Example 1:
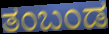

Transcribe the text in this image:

ತಂಬಂಡ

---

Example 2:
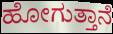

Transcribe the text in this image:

ಹೋಗುತ್ತಾನೆ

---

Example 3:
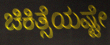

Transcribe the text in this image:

ಚಿಕಿತ್ಸೆಯಷ್ಟೇ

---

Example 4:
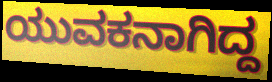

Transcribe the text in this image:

ಯುವಕನಾಗಿದ್ದ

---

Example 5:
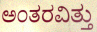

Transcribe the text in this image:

ಅಂತರವಿತ್ತು